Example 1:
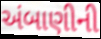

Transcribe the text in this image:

અંબાણીની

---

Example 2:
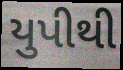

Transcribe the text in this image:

યુપીથી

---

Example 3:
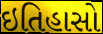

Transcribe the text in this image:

ઇતિહાસો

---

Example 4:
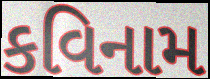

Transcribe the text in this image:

કવિનામ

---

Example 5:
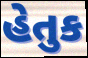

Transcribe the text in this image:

હેતુક